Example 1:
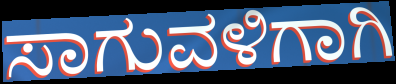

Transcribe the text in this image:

ಸಾಗುವಳಿಗಾಗಿ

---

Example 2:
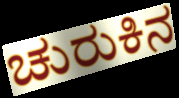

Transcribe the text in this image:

ಚುರುಕಿನ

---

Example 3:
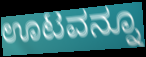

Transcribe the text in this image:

ಊಟವನ್ನೂ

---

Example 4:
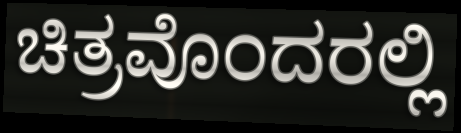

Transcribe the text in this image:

ಚಿತ್ರವೊಂದರಲ್ಲಿ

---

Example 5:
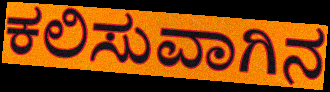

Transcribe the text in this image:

ಕಲಿಸುವಾಗಿನ